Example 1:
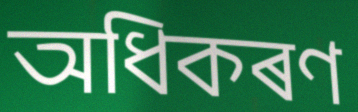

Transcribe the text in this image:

অধিকৰণ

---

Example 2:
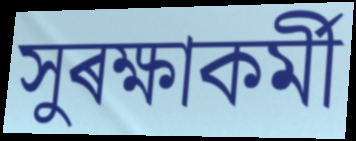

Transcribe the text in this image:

সুৰক্ষাকৰ্মী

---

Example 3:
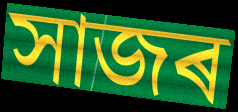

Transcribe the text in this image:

সাজৰ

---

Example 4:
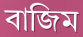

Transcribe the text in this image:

বাজিম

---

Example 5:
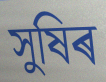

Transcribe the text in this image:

সুষিৰ